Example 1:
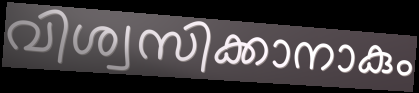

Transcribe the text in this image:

വിശ്വസിക്കാനാകും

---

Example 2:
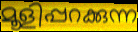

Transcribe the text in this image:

മൂളിപ്പറക്കുന്ന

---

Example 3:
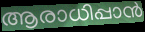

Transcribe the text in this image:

ആരാധിപ്പാൻ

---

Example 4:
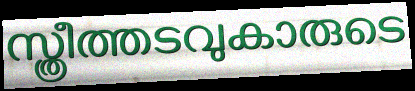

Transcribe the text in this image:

സ്ത്രീത്തടവുകാരുടെ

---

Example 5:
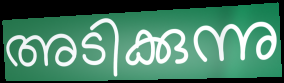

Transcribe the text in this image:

അടിക്കുന്നു